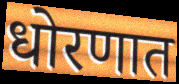
धोरणात